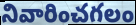
నివారించగలం